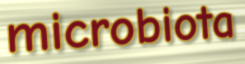
microbiota